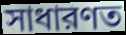
সাধারণত